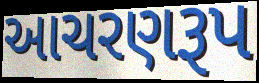
આચરણરૂપ